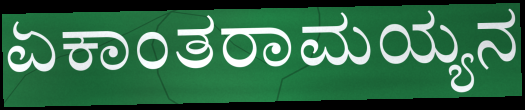
ಏಕಾಂತರಾಮಯ್ಯನ